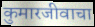
कुमारजीवाचा